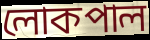
লোকপাল